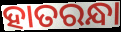
ହାତରନ୍ଧା